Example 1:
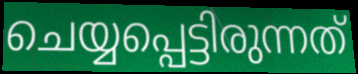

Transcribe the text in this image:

ചെയ്യപ്പെട്ടിരുന്നത്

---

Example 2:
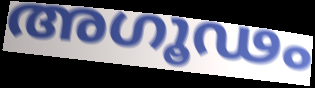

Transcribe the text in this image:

അഗൂഢം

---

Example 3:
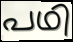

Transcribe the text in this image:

പഥി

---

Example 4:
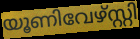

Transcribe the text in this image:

യൂണിവേഴ്സ്റ്റി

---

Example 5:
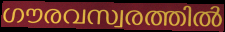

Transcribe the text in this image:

ഗൗരവസ്വരത്തിൽ